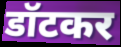
डॉटकर